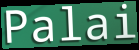
Palai